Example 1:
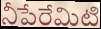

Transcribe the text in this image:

నీపేరేమిటి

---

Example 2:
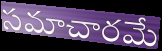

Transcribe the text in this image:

సమాచారమే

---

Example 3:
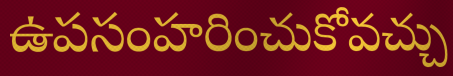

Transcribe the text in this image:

ఉపసంహరించుకోవచ్చు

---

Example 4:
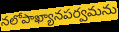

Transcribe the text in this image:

నలోపాఖ్యానపర్వమను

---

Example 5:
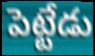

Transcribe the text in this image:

పెట్టేడు